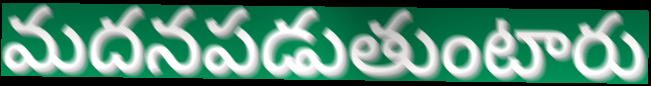
మదనపడుతుంటారు